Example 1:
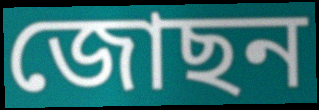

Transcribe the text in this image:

জোছন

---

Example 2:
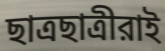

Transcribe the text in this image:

ছাত্রছাত্রীরাই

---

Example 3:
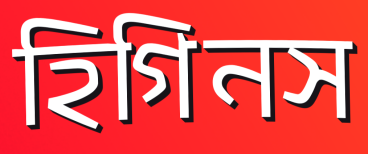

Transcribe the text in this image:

হিগিনস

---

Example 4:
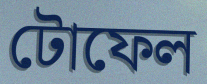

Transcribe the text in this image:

টোফেল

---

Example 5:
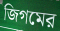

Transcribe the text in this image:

জিগমের